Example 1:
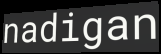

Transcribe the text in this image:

nadigan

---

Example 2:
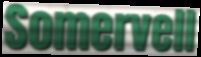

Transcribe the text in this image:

Somervell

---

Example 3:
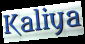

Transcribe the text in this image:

Kaliya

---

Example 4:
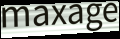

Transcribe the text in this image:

maxage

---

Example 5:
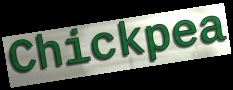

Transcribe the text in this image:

Chickpea